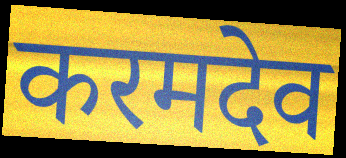
करमदेव